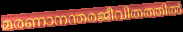
മരണാനന്തരജീവിതത്തിൽ